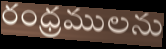
రంధ్రములను